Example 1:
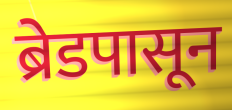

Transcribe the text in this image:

ब्रेडपासून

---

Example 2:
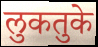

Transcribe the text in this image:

लुकतुके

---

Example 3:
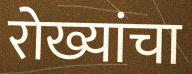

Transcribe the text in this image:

रोख्यांचा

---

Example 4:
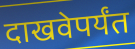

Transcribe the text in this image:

दाखवेपर्यंत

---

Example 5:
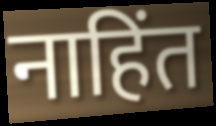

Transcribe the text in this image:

नाहिंत